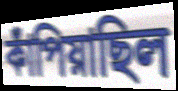
কাঁপিয়াছিল